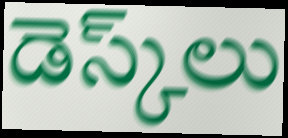
డెస్క్‌లు